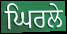
ਘਿਰਲੇ